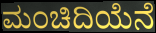
ಮಂಚಿದಿಯೆನೆ